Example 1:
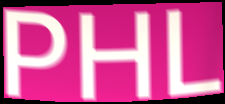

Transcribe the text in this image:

PHL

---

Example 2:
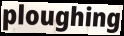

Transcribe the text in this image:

ploughing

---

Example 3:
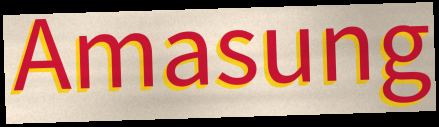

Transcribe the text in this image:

Amasung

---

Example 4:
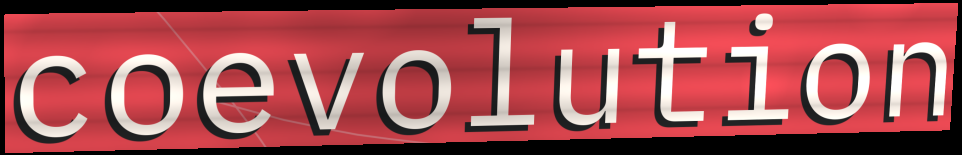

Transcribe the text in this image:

coevolution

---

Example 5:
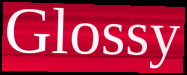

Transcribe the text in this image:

Glossy